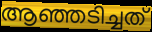
ആഞ്ഞടിച്ചത്